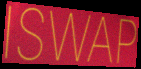
ISWAP